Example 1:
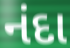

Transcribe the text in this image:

નંદા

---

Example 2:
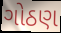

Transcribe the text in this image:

ગોઠણ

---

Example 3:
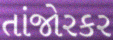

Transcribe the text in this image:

તાંજોરકર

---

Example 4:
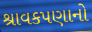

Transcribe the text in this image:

શ્રાવકપણાનો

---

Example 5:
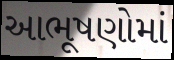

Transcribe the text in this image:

આભૂષણોમાં